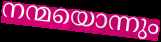
നന്മയൊന്നും